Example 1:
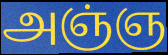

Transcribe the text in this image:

அஞ்ஞ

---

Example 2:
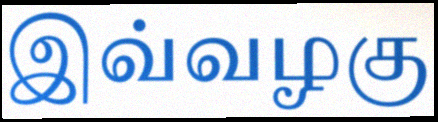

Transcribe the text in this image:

இவ்வழகு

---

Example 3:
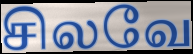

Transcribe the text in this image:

சிலவே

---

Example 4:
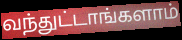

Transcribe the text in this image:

வந்துட்டாங்களாம்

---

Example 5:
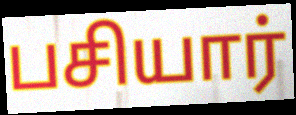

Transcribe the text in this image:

பசியார்